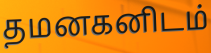
தமனகனிடம்